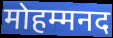
मोहम्मनद